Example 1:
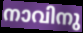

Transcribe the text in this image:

നാവിനു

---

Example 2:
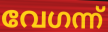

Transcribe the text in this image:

വേഗന്ന്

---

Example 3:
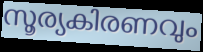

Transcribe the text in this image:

സൂര്യകിരണവും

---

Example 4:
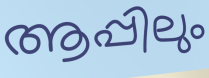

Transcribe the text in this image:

ആപ്പിലും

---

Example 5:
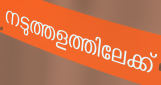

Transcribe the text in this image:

നടുത്തളത്തിലേക്ക്